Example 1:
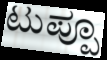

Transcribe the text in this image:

ಟುಪ್ಪೂ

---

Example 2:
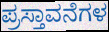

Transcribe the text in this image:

ಪ್ರಸ್ತಾವನೆಗಳ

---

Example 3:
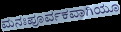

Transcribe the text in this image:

ಮನಃಪೂರ್ವಕವಾಗಿಯೂ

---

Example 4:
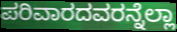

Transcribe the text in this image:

ಪರಿವಾರದವರನ್ನೆಲ್ಲಾ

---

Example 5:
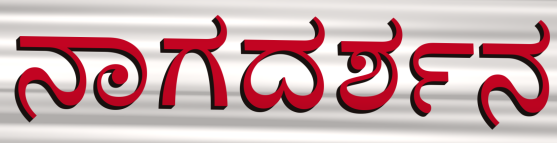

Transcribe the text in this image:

ನಾಗದರ್ಶನ